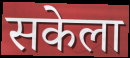
सकेला